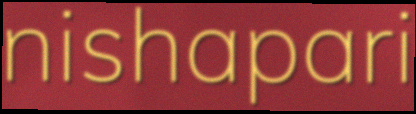
nishapari